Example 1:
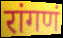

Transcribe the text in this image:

रांगणं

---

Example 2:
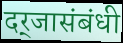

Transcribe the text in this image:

दर्जासंबंधी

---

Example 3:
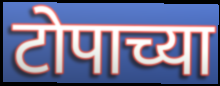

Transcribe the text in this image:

टोपाच्या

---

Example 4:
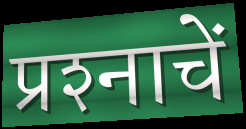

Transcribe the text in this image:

प्रश्नाचें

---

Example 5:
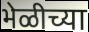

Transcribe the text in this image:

भेळीच्या